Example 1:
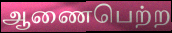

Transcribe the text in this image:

ஆணைபெற்ற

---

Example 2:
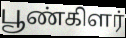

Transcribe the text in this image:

பூண்கிளர்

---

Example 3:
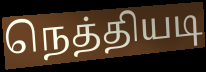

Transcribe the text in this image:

நெத்தியடி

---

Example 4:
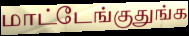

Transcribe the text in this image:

மாட்டேங்குதுங்க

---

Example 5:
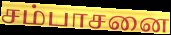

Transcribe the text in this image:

சம்பாசனை